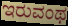
ಇರುವಂಥ